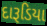
દારૂડિયા